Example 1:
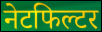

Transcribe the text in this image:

नेटफिल्टर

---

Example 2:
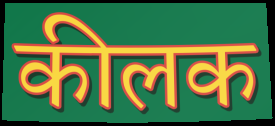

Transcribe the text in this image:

कीलक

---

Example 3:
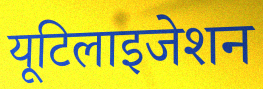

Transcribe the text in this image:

यूटिलाइजेशन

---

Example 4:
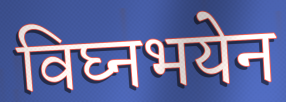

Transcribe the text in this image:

विघ्नभयेन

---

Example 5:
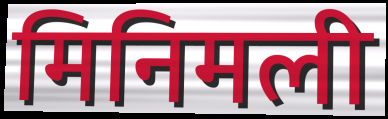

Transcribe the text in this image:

मिनिमली